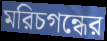
মরিচগন্ধের